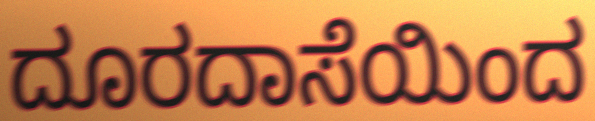
ದೂರದಾಸೆಯಿಂದ